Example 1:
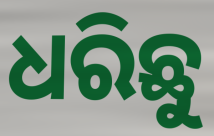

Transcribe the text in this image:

ଧରିଛୁ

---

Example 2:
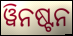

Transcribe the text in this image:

ୱିନଷ୍ଟନ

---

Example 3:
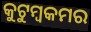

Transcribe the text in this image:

କୁଟୁମ୍ବକମର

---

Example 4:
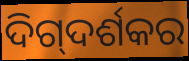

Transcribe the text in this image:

ଦିଗ୍‍ଦର୍ଶକର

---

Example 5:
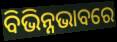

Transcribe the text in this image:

ବିଭିନ୍ନଭାବରେ